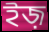
ইজ়